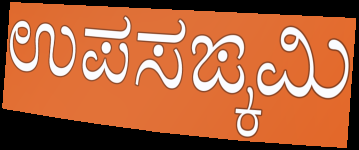
ಉಪಸಙ್ಕಮಿ